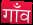
गाँव